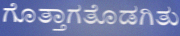
ಗೊತ್ತಾಗತೊಡಗಿತು